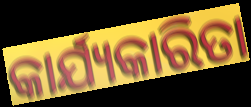
କାର୍ଯ୍ୟକାରିତା